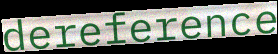
dereference